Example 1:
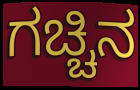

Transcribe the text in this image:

ಗಚ್ಚಿನ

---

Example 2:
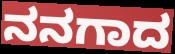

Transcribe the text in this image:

ನನಗಾದ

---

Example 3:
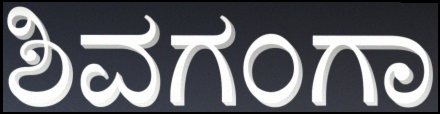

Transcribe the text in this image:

ಶಿವಗಂಗಾ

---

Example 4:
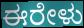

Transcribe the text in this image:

ಈರೇಳು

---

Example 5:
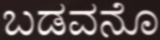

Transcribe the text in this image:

ಬಡವನೊ